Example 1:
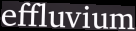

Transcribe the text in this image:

effluvium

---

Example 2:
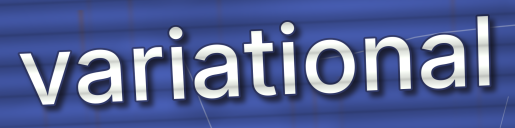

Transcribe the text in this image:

variational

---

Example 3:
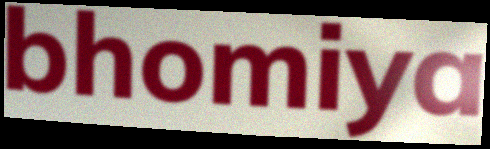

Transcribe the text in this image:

bhomiya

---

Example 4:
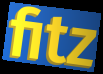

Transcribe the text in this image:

fitz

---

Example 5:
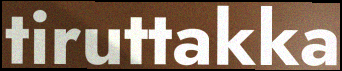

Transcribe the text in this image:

tiruttakka